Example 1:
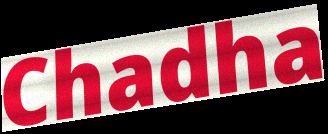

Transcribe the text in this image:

Chadha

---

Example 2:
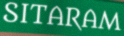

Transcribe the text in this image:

SITARAM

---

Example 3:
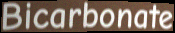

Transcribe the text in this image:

Bicarbonate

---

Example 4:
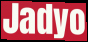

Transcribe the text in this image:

Jadyo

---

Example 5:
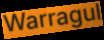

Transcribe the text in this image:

Warragul